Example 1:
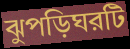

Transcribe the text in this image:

ঝুপড়িঘরটি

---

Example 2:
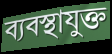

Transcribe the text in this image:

ব্যবস্থাযুক্ত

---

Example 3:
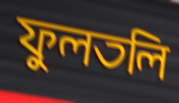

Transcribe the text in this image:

ফুলতলি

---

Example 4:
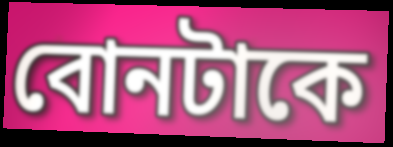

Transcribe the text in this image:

বোনটাকে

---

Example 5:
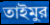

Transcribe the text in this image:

তাইমুর